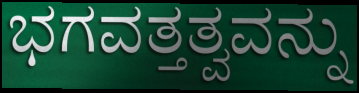
ಭಗವತ್ತತ್ವವನ್ನು